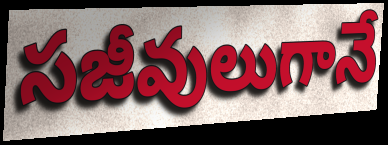
సజీవులుగానే